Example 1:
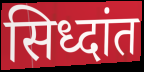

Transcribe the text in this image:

सिध्दांत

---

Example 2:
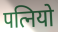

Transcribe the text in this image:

पत्नियो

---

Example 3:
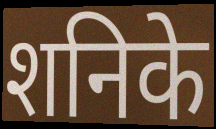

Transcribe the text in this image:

शनिके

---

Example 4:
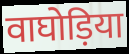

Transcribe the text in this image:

वाघोड़िया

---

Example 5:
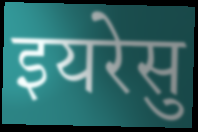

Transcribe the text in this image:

इयरेसु